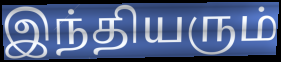
இந்தியரும்